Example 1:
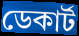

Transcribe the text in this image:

ডেকাৰ্ট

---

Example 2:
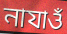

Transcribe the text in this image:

নাযাওঁ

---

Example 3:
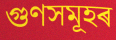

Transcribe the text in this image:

গুণসমূহৰ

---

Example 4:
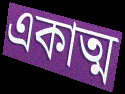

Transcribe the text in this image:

একাত্ম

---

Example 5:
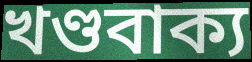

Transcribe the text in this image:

খণ্ডবাক্য